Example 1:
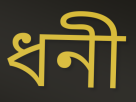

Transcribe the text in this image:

ধনী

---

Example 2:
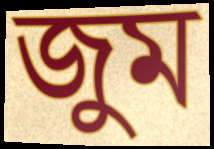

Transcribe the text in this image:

জুম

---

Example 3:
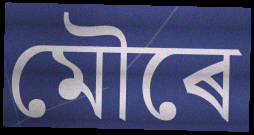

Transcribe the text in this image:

মৌৰে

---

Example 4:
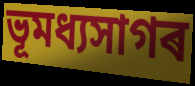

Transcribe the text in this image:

ভূমধ্যসাগৰ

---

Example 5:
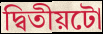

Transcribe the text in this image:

দ্বিতীয়টো